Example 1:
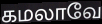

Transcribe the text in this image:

கமலாவே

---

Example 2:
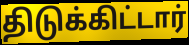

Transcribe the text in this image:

திடுக்கிட்டார்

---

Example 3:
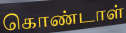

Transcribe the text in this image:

கொண்டாள்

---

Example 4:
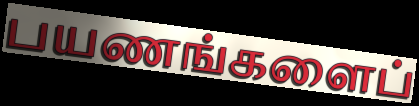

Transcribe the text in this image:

பயணங்களைப்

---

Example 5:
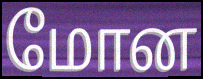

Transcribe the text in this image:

மோன